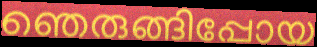
ഞെരുങ്ങിപ്പോയ